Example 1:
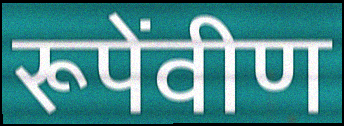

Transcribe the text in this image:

रूपेंवीण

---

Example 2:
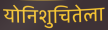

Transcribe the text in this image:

योनिशुचितेला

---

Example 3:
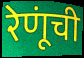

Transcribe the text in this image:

रेणूंची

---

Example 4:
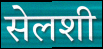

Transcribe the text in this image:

सेलशी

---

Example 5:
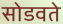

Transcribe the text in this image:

सोडवते